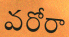
వరోరా